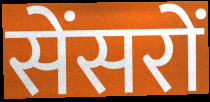
सेंसरों